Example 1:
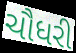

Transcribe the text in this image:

ચૌધરી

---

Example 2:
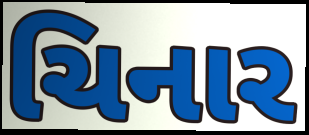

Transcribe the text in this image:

ચિનાર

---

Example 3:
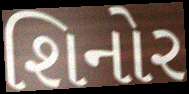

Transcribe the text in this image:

શિનોર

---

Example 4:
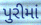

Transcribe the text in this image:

પુરીમાં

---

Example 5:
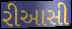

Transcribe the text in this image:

રીઆસી